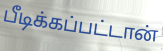
பீடிக்கப்பட்டான்